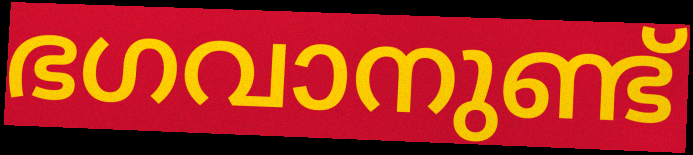
ഭഗവാനുണ്ട്